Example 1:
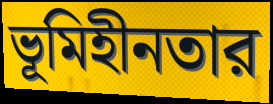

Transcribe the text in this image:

ভূমিহীনতার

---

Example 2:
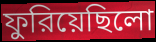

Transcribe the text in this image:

ফুরিয়েছিলো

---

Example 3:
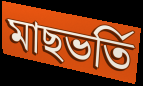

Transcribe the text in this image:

মাছভর্তি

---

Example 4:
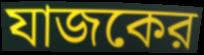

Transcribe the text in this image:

যাজকের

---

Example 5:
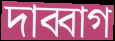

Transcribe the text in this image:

দাব্বাগ